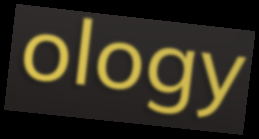
ology